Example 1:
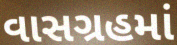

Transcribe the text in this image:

વાસગ્રહમાં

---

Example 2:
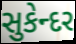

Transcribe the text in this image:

સુકેન્દર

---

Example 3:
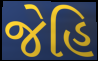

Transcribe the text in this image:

જેહિ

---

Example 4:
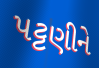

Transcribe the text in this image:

પટ્ટણીને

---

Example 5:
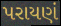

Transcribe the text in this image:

પરાયણં